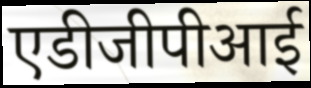
एडीजीपीआई